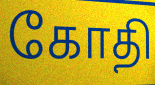
கோதி